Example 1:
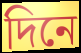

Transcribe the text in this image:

দিনে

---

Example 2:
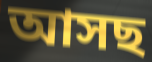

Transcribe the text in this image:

আসছ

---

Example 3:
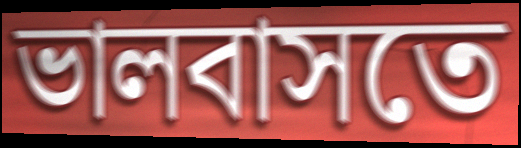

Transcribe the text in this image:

ভালবাসতে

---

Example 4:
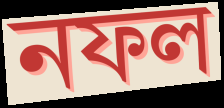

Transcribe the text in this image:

নফল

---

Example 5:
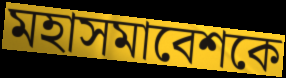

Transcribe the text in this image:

মহাসমাবেশকে